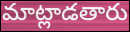
మాట్లాడతారు